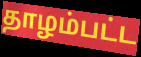
தாழம்பட்ட